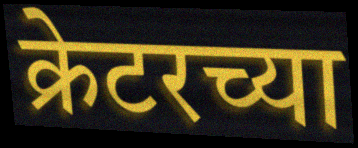
क्रेटरच्या